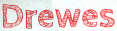
Drewes